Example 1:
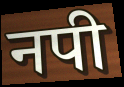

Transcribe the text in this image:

नपी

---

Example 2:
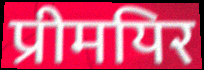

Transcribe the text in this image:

प्रीमयिर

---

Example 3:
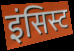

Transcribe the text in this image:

इंसिस्ट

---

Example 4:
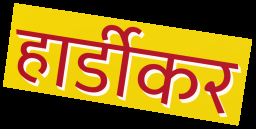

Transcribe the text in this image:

हार्डीकर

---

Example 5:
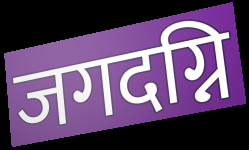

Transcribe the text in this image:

जगदग्नि